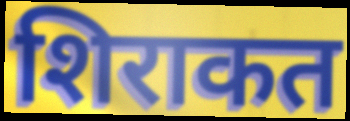
शिराकत